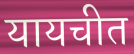
यायचीत